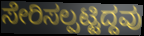
ಸೇರಿಸಲ್ಪಟ್ಟಿದ್ದವು